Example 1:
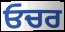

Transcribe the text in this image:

ਓਚਰ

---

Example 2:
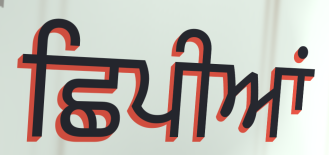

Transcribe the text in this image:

ਛਿਪੀਆਂ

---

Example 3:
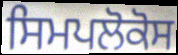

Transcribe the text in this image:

ਸਿਮਪਲੋਕੋਸ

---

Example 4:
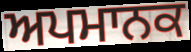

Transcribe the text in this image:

ਅਪਮਾਨਕ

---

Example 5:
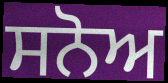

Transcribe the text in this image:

ਸਨੋਅ